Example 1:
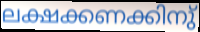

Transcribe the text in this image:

ലക്ഷക്കണക്കിനു്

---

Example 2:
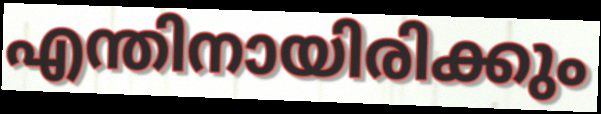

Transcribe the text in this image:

എന്തിനായിരിക്കും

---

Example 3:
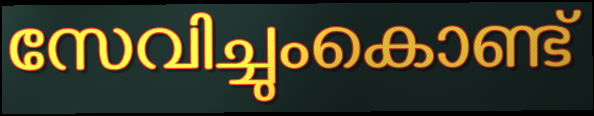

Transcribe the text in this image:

സേവിച്ചുംകൊണ്ട്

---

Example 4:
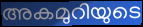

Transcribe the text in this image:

അകമുറിയുടെ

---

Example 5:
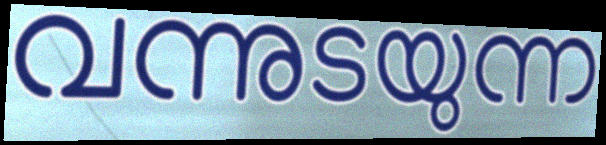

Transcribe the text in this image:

വന്നുടയുന്ന